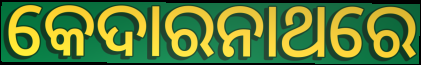
କେଦାରନାଥରେ